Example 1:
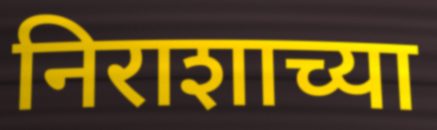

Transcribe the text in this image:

निराशाच्या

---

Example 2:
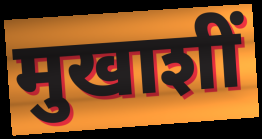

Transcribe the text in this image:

मुखाशीं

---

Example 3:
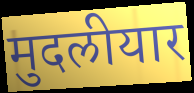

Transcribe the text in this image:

मुदलीयार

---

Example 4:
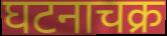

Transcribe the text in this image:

घटनाचक्र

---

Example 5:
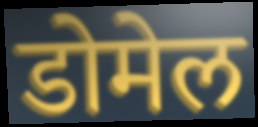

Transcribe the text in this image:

डोमेल